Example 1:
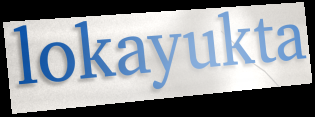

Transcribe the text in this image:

lokayukta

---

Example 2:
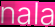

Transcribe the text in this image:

nala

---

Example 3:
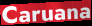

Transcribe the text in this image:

Caruana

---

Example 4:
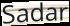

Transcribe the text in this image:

Sadar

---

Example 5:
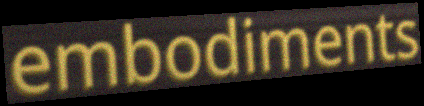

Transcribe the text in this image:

embodiments